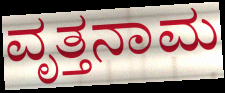
ವೃತ್ತನಾಮ